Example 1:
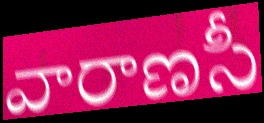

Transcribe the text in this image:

వారాణసీ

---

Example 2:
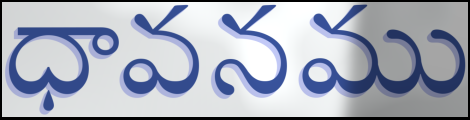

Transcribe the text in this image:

ధావనము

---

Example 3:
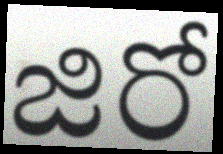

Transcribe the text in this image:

జిరో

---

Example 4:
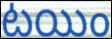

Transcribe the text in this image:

టయిం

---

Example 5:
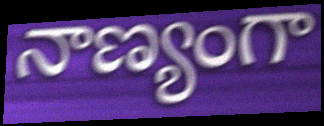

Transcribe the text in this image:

నాణ్యంగా